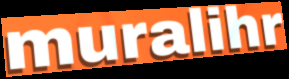
muralihr